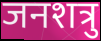
जनशत्रु